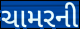
ચામરની